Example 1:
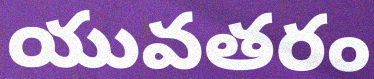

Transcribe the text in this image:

యువతరం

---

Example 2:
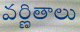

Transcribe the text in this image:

వర్ణితాలు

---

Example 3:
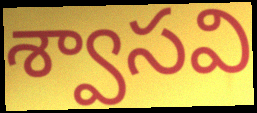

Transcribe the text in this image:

శ్వాసవి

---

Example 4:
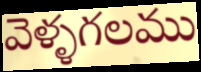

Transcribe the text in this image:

వెళ్ళగలము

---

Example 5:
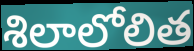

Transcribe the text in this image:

శిలాలోలిత